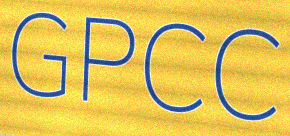
GPCC